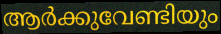
ആർക്കുവേണ്ടിയും